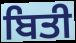
ਬਿਤੀ